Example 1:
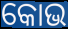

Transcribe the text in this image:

କୋଭ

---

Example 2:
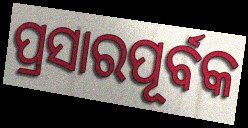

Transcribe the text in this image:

ପ୍ରସାରପୂର୍ବକ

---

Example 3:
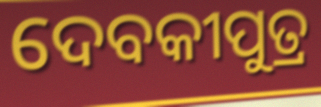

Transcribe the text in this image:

ଦେବକୀପୁତ୍ର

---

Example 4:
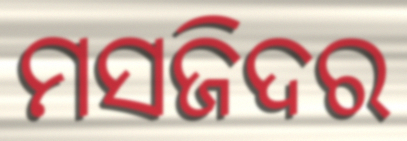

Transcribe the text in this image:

ମସଜିଦର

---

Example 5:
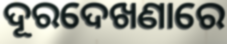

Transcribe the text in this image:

ଦୂରଦେଖଣାରେ